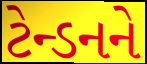
ટેન્ડનને